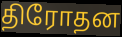
திரோதன